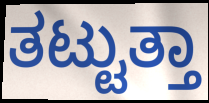
ತಟ್ಟುತ್ತಾ